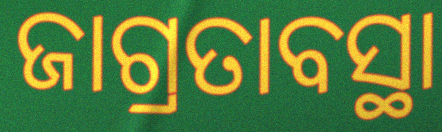
ଜାଗ୍ରତାବସ୍ଥା